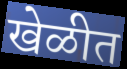
खेळीत